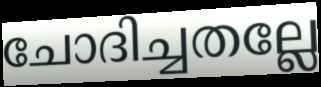
ചോദിച്ചതല്ലേ